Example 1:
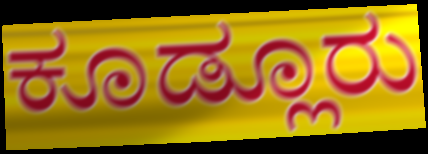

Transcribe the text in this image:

ಕೂಡ್ಲೂರು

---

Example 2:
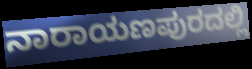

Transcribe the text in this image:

ನಾರಾಯಣಪುರದಲ್ಲಿ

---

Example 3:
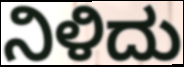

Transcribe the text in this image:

ನಿಳಿದು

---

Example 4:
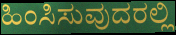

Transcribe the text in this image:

ಹಿಂಸಿಸುವುದರಲ್ಲಿ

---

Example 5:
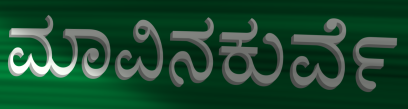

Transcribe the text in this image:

ಮಾವಿನಕುರ್ವೆ